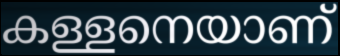
കള്ളനെയാണ്